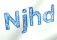
Njhd